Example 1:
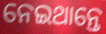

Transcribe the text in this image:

ନେଇଥାନ୍ତେ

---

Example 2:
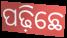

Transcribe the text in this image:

ପଢ଼ିଛେ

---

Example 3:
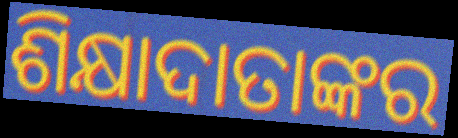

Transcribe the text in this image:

ଶିକ୍ଷାଦାତାଙ୍କର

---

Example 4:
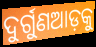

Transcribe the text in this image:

ଦୁର୍ଗୁଣଆଡ଼କୁ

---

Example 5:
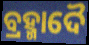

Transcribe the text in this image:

ବ୍ରହ୍ମାଦୈ